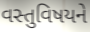
વસ્તુવિષયને